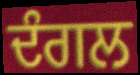
ਦੰਗਲ